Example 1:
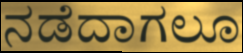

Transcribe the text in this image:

ನಡೆದಾಗಲೂ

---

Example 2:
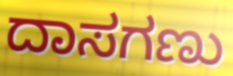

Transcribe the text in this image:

ದಾಸಗಣು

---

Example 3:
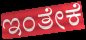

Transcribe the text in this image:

ಇಂತೇಕೆ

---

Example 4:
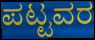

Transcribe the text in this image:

ಪಟ್ಟವರ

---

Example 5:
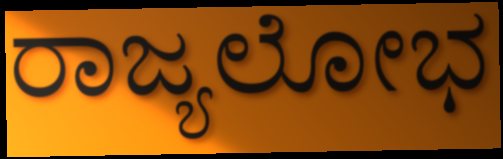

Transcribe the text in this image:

ರಾಜ್ಯಲೋಭ